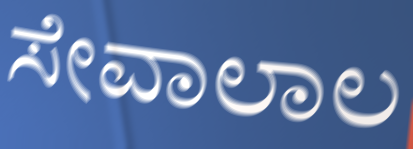
ಸೇವಾಲಾಲ